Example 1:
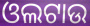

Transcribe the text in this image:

ଓଲଟାଉ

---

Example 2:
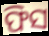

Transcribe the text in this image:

ଫିସ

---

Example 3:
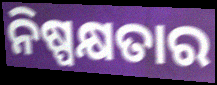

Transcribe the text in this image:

ନିଷ୍ପକ୍ଷତାର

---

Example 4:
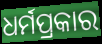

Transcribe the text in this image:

ଧର୍ମପ୍ରକାର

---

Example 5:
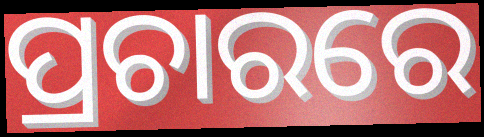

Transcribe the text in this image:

ପ୍ରଚାରରେ